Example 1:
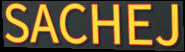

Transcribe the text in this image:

SACHEJ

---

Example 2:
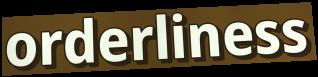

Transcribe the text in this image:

orderliness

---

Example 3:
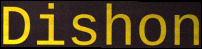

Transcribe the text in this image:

Dishon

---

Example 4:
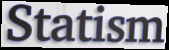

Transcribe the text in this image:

Statism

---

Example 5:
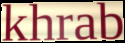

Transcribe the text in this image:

khrab